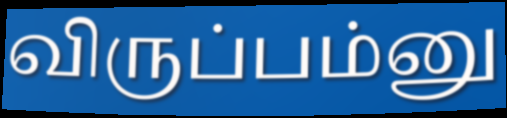
விருப்பம்னு